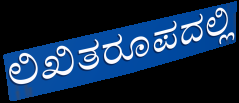
ಲಿಖಿತರೂಪದಲ್ಲಿ